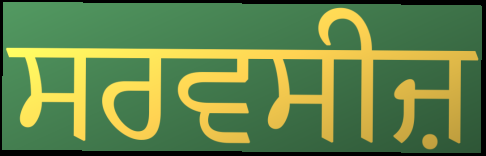
ਸਰਵਸੀਜ਼